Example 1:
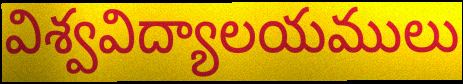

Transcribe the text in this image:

విశ్వవిద్యాలయములు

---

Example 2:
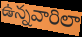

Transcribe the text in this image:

ఉన్నవారిలా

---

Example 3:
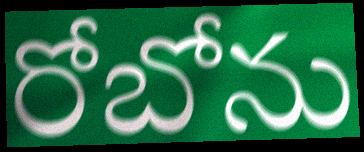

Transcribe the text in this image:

రోబోను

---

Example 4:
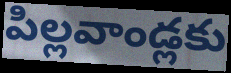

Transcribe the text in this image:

పిల్లవాండ్లకు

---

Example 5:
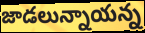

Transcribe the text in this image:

జాడలున్నాయన్న